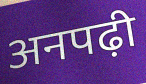
अनपढ़ी